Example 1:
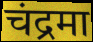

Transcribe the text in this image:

चंद्रमा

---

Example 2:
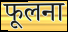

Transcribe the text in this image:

फूलना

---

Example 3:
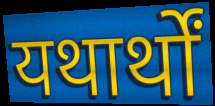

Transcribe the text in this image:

यथार्थों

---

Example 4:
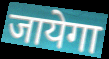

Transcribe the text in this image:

जायेगा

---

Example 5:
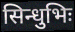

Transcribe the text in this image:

सिन्धुभिः